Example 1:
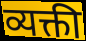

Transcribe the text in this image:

व्यक्ती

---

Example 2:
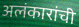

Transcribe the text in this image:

अलंकारांची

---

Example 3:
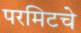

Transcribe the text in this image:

परमिटचे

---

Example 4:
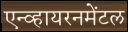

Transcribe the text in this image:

एन्व्हायरनमेंटल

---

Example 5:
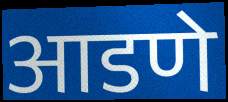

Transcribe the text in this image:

आडणे